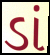
ડાં